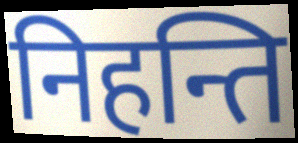
निहन्ति